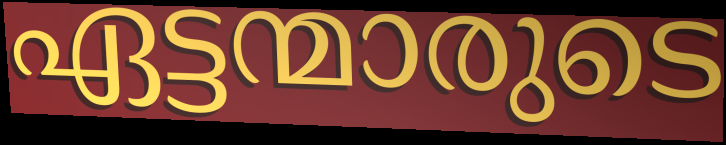
ഏട്ടന്മാരുടെ